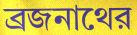
ব্রজনাথের